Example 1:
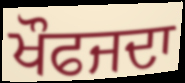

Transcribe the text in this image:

ਖੌਫਜਦਾ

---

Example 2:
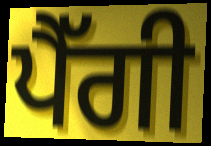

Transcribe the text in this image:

ਪੈੱਗੀ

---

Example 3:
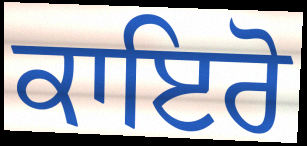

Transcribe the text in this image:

ਕਾਇਰੋ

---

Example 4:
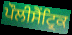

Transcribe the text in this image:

ਪੌਲੀਸੈਂਟ੍ਰਿਕ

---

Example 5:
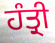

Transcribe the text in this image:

ਹੰਤ੍ਰੀ